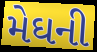
મેઘની